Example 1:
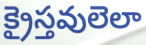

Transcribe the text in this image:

క్రైస్తవులెలా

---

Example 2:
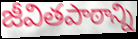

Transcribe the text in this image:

జీవితపాఠాన్ని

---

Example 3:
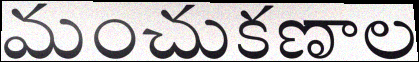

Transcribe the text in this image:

మంచుకణాల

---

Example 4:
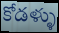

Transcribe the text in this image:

కోడళ్ళు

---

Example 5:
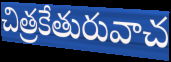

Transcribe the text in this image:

చిత్రకేతురువాచ